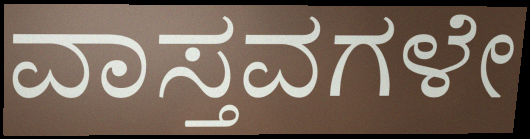
ವಾಸ್ತವಗಳೇ